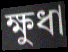
ক্ষুধা